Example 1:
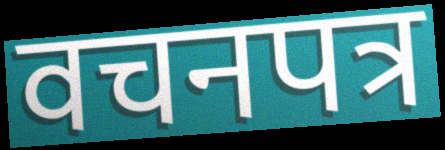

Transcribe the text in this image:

वचनपत्र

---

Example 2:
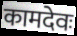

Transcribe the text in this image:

कामदेवः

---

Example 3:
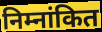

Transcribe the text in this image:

निम्नांकित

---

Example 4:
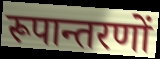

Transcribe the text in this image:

रूपान्तरणों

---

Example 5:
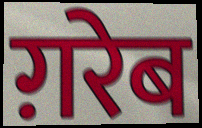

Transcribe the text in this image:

ग़रेब